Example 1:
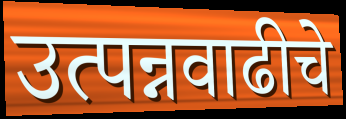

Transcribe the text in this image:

उत्पन्नवाढीचे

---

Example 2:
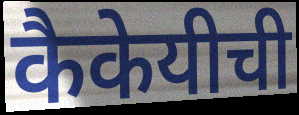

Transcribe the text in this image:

कैकेयीची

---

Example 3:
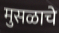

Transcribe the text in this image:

मुसळाचे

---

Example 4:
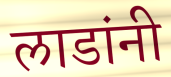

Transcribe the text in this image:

लाडांनी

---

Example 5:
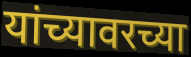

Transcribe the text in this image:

यांच्यावरच्या